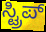
ಸ್ಟ್ರಿಪ್